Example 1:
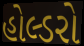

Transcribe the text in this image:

હોલ્ડરો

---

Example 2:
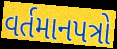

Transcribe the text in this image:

વર્તમાનપત્રો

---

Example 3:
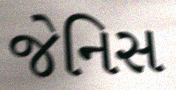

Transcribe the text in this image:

જેનિસ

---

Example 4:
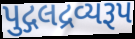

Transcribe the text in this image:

પુદ્ગલદ્રવ્યરૂપ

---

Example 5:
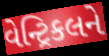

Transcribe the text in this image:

વેન્ટ્રિકલને